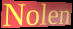
Nolen